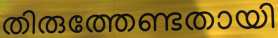
തിരുത്തേണ്ടതായി